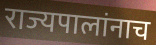
राज्यपालांनाच